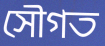
সৌগত